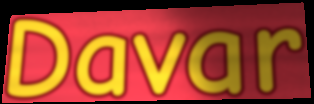
Davar